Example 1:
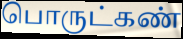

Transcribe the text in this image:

பொருட்கண்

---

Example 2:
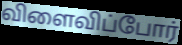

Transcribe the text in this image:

விளைவிப்போர்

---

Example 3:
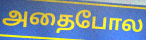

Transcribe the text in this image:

அதைபோல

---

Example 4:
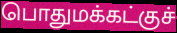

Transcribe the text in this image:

பொதுமக்கட்குச்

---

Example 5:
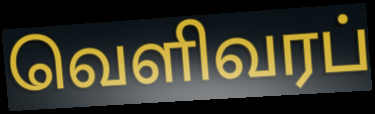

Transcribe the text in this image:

வெளிவரப்